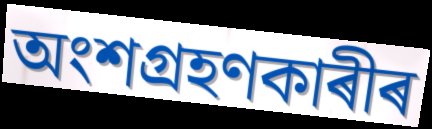
অংশগ্ৰহণকাৰীৰ